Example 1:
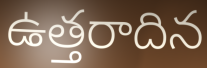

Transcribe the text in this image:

ఉత్తరాదిన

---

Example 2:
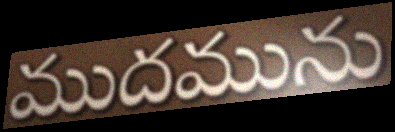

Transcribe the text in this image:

ముదమును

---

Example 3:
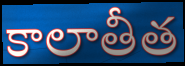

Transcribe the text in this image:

కాలాతీత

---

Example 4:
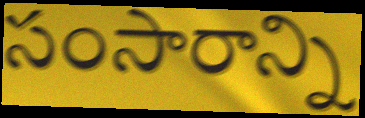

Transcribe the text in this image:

సంసారాన్ని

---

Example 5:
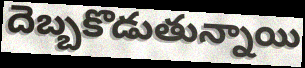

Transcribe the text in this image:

దెబ్బకొడుతున్నాయి